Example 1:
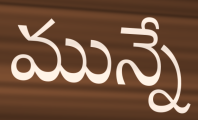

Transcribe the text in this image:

మున్నే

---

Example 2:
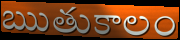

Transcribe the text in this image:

ఋతుకాలం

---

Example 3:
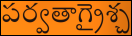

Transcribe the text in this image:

పర్వతాగ్రైశ్చ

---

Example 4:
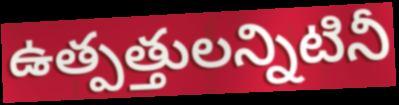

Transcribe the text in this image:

ఉత్పత్తులన్నిటినీ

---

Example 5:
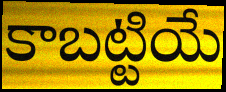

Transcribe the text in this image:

కాబట్టియే